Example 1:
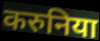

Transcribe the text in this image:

करुनिया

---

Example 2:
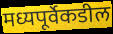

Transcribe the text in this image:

मध्यपूर्वेकडील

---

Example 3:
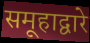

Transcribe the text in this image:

समूहाद्वारे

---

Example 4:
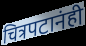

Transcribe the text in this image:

चित्रपटानंही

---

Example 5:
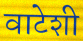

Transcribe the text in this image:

वाटेशी